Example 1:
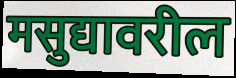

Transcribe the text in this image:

मसुद्यावरील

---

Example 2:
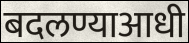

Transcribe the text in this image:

बदलण्याआधी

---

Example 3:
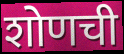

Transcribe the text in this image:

शोणची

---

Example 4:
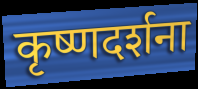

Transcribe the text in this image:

कृष्णदर्शना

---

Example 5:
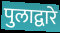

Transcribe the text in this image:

पुलाद्वारे